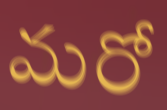
మరో